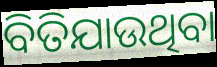
ବିତିଯାଉଥିବା